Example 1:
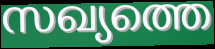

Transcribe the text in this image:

സഖ്യത്തെ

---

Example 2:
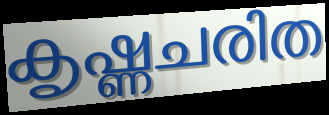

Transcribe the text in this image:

കൃഷ്ണചരിത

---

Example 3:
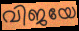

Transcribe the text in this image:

വിജയേ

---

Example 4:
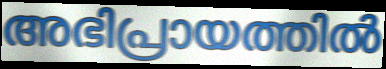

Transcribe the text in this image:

അഭിപ്രായത്തിൽ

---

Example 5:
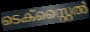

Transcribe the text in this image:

ടെക്സ്റ്റൈൽ